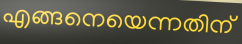
എങ്ങനെയെന്നതിന്